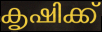
കൃഷിക്ക്